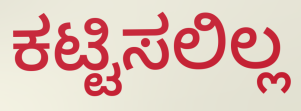
ಕಟ್ಟಿಸಲಿಲ್ಲ